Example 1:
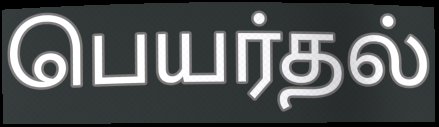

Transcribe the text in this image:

பெயர்தல்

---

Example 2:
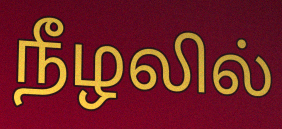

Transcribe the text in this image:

நீழலில்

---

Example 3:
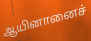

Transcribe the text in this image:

ஆயினானைச்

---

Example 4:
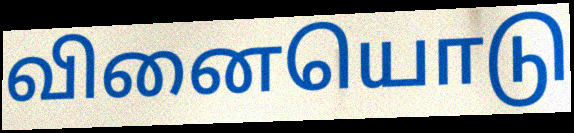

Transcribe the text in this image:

வினையொடு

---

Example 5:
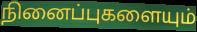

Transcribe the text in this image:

நினைப்புகளையும்